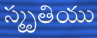
స్మృతియు